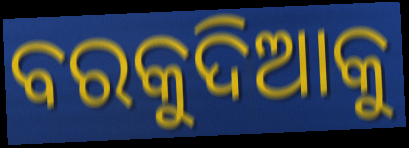
ବରକୁଦିଆକୁ